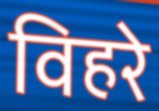
विहरे